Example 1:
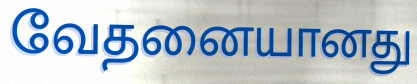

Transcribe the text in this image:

வேதனையானது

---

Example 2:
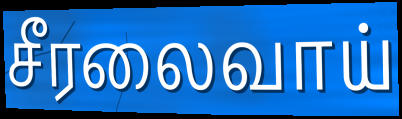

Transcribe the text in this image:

சீரலைவாய்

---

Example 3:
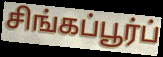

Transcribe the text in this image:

சிங்கப்பூர்ப்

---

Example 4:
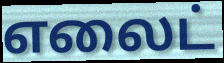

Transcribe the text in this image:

எலைட்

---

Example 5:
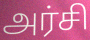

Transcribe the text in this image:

அர்சி